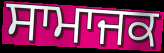
ਸਾਮਾਜਕ